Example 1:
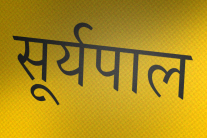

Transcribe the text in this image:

सूर्यपाल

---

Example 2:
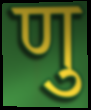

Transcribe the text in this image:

णु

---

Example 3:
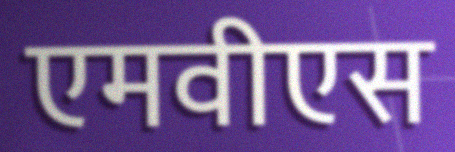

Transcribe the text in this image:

एमवीएस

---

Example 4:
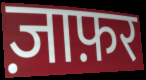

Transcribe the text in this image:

ज़ाफ़र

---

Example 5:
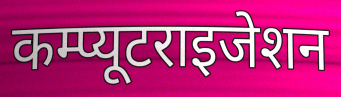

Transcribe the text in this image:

कम्प्यूटराइजेशन